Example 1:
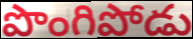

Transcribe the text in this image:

పొంగిపోడు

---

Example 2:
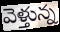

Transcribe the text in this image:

వెళ్తున్న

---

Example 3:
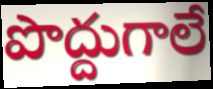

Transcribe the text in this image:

పొద్దుగాలే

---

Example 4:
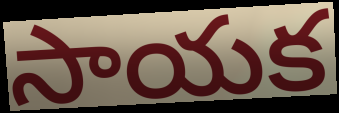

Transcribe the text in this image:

సాయక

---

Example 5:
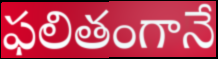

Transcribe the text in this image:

ఫలితంగానే